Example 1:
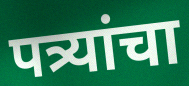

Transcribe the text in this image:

पत्र्यांचा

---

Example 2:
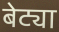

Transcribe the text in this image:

बेट्या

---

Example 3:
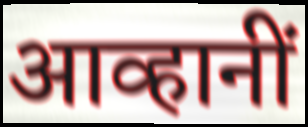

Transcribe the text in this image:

आव्हानीं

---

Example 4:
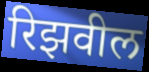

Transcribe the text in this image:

रिझवील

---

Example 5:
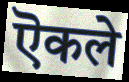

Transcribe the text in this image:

ऎकले